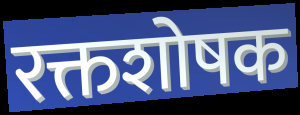
रक्तशोषक